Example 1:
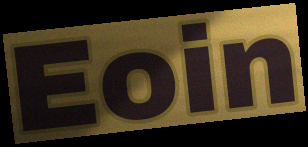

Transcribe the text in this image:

Eoin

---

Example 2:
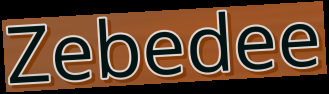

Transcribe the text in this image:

Zebedee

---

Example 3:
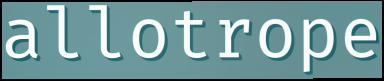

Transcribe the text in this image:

allotrope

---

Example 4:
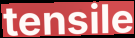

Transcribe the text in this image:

tensile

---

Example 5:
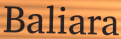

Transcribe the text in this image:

Baliara